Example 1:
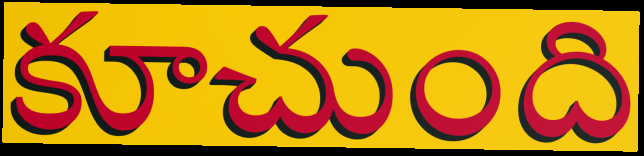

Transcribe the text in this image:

కూచుంది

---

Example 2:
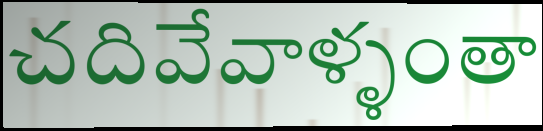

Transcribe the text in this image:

చదివేవాళ్ళంతా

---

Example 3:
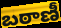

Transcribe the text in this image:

బఠాణీ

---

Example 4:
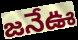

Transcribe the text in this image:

జనేఊ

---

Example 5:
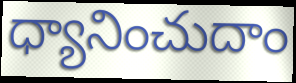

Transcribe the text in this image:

ధ్యానించుదాం